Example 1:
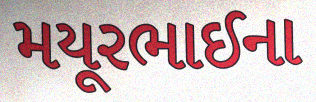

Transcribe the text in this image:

મયૂરભાઈના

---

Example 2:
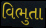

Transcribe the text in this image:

વિભુતા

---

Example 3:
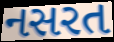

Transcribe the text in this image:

નસરત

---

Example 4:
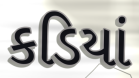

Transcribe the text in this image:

કડિયાં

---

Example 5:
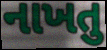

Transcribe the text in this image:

નાખતુ